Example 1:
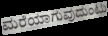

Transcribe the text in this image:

ಮರೆಯಾಗುವುದುಂಟು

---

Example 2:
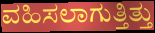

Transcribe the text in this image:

ವಹಿಸಲಾಗುತ್ತಿತ್ತು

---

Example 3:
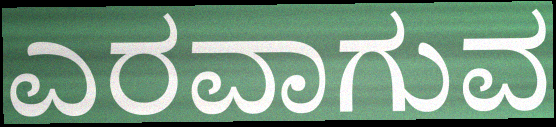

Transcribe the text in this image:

ಎರವಾಗುವ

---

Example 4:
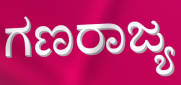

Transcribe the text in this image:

ಗಣರಾಜ್ಯ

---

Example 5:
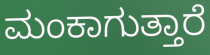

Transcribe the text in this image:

ಮಂಕಾಗುತ್ತಾರೆ